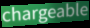
chargeable